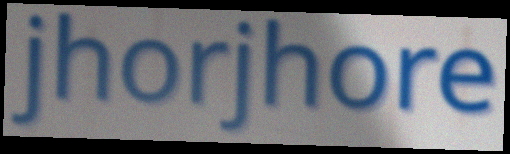
jhorjhore